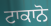
ਟਾਕਾਨੋ